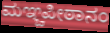
ಮಞ್ಚಪೀಠಾನಂ